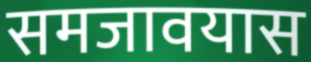
समजावयास